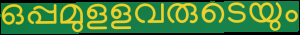
ഒപ്പമുളളവരുടെയും